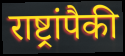
राष्ट्रांपैकी